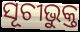
ସୂଚୀଭୁକ୍ତ